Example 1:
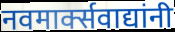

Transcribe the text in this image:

नवमार्क्सवाद्यांनी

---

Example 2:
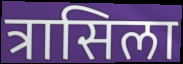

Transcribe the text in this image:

त्रासिला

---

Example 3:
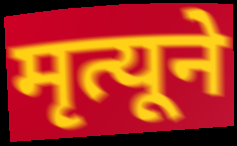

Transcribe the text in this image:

मृत्यूने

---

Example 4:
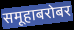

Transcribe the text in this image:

समूहाबरोबर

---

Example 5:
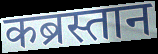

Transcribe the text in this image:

कब्रस्तान